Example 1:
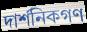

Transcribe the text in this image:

দার্শনিকগণ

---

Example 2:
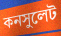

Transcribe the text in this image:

কনসুলেট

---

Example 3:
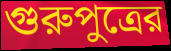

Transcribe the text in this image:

গুরুপুত্রের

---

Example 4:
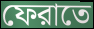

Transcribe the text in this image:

ফেরাতে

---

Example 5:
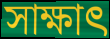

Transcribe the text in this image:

সাক্ষাৎ